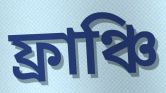
ফ্রাঞ্চি